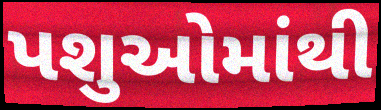
પશુઓમાંથી